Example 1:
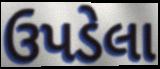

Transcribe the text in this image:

ઉપડેલા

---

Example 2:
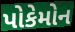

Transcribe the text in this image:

પોકેમોન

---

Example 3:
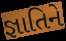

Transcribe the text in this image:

જ્ઞાતિને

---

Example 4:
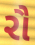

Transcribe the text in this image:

રૌ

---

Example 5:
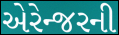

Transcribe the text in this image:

એરેન્જરની